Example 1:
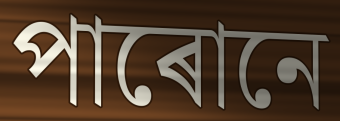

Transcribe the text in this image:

পাৰোনে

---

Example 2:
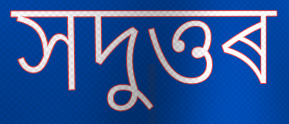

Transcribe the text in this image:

সদুত্তৰ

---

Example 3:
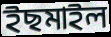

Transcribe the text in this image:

ইছমাইল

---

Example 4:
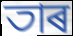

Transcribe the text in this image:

তাৰ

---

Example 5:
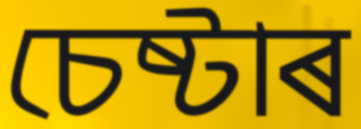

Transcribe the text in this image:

চেষ্টাৰ